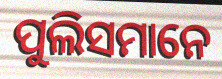
ପୁଲିସମାନେ